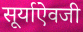
सूर्याऐवजी